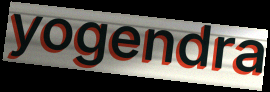
yogendra